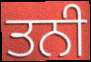
ਤਨੀ